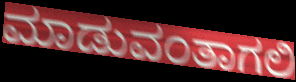
ಮಾಡುವಂತಾಗಲಿ